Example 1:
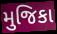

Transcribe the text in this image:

મુજિકા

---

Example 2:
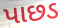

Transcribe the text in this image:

પાછડ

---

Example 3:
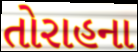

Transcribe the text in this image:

તોરાહના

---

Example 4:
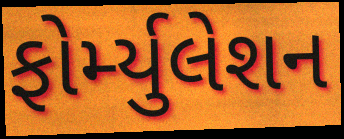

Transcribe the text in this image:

ફોર્મ્યુલેશન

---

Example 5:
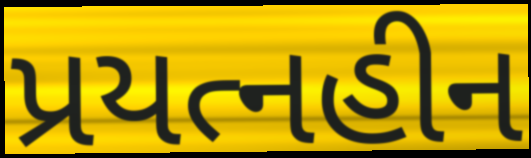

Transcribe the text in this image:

પ્રયત્નહીન